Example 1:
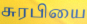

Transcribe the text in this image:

சுரபியை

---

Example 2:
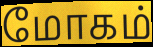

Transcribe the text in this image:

மோகம்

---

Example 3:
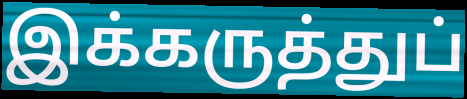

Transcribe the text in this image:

இக்கருத்துப்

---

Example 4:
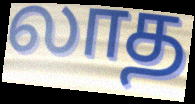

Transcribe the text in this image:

லாத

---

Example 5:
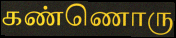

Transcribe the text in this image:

கண்ணொரு